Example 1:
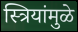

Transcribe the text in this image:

स्त्रियांमुळे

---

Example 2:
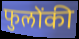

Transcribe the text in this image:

फुलोंकी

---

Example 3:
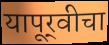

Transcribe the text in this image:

यापूर्वीचा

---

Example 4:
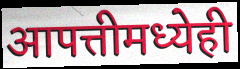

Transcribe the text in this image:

आपत्तीमध्येही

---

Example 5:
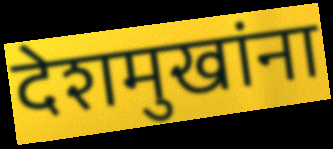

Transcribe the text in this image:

देशमुखांना